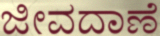
ಜೀವದಾಣೆ